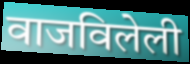
वाजविलेली